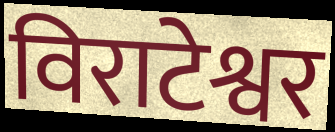
विराटेश्वर